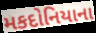
મકદોનિયાના